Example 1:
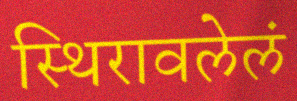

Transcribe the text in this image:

स्थिरावलेलं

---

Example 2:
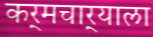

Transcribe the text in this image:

कर्मचार्याला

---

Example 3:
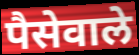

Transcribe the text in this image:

पैसेवाले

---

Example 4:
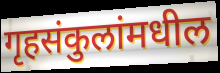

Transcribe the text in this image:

गृहसंकुलांमधील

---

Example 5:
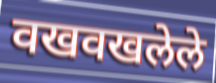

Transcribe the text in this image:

वखवखलेले